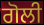
ਗੋਲੀ